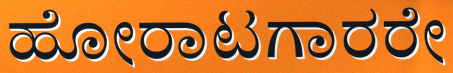
ಹೋರಾಟಗಾರರೇ